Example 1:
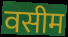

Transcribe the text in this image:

वसीम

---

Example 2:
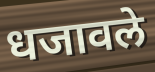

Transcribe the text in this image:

धजावले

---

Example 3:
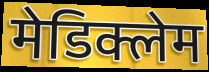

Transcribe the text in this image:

मेडिक्लेम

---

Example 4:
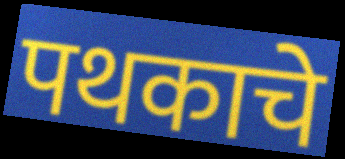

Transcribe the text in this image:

पथकाचे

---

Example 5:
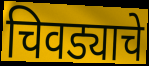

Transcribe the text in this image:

चिवड्याचे